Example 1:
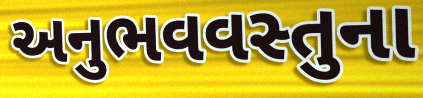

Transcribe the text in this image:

અનુભવવસ્તુના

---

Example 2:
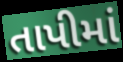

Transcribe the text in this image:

તાપીમાં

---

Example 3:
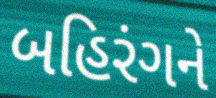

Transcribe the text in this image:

બહિરંગને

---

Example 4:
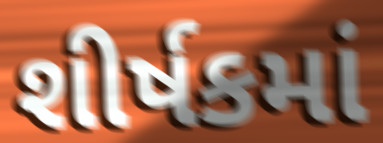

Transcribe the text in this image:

શીર્ષકમાં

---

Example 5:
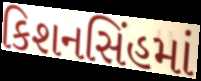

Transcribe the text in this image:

કિશનસિંહમાં